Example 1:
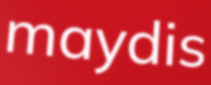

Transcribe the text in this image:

maydis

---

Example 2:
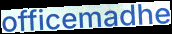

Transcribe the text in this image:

officemadhe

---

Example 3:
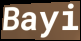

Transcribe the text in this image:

Bayi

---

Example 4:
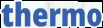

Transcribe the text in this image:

thermo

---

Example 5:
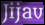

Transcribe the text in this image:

Jijau